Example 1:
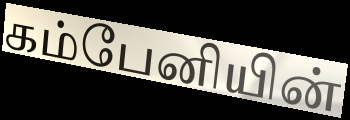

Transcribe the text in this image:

கம்பேனியின்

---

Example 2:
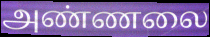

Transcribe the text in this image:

அண்ணலை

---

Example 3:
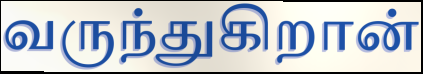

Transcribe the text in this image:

வருந்துகிறான்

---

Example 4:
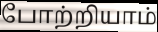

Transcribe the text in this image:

போற்றியாம்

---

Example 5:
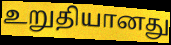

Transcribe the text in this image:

உறுதியானது